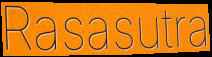
Rasasutra